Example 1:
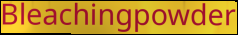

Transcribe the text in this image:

Bleachingpowder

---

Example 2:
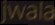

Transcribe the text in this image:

jwala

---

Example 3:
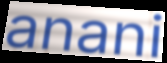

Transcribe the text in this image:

anani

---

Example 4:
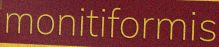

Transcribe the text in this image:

monitiformis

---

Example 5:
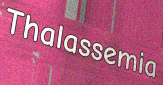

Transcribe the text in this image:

Thalassemia